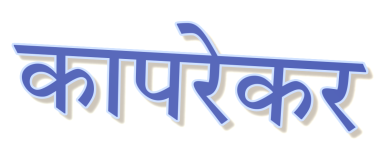
कापरेकर